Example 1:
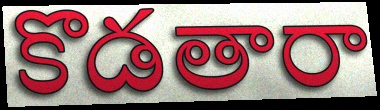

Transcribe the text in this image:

కొడతారా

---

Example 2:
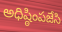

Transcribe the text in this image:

అధిష్ఠింపజేసి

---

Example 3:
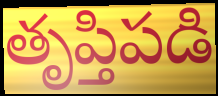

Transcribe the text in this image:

తృప్తిపడి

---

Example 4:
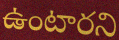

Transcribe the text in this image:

ఉంటారని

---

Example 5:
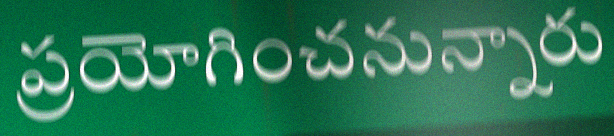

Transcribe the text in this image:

ప్రయోగించనున్నారు